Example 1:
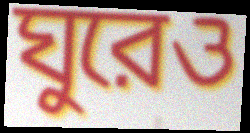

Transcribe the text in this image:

ঘুরেও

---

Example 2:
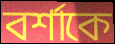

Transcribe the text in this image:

বর্শাকে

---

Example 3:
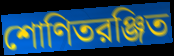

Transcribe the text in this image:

শোণিতরঞ্জিত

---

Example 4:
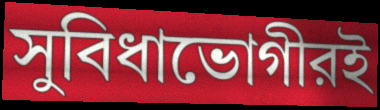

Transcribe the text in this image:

সুবিধাভোগীরই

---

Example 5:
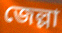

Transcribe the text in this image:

জেল্লা